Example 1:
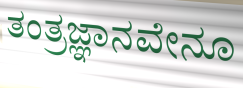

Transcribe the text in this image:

ತಂತ್ರಜ್ಞಾನವೇನೂ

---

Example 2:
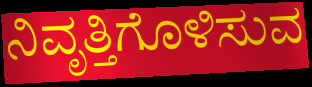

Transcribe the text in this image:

ನಿವೃತ್ತಿಗೊಳಿಸುವ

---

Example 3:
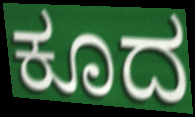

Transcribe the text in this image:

ಕೂದ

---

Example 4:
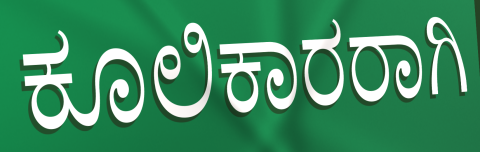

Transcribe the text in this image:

ಕೂಲಿಕಾರರಾಗಿ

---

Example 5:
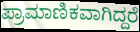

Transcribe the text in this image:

ಪ್ರಾಮಾಣಿಕವಾಗಿದ್ದರೆ